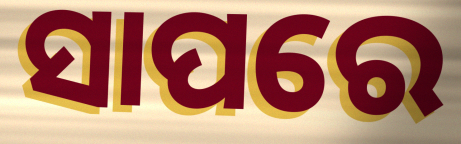
ସାପରେ